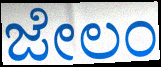
ಜೇಲಂ